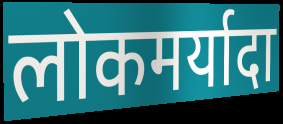
लोकमर्यादा